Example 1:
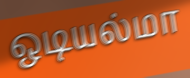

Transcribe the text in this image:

ஒடியல்மா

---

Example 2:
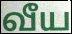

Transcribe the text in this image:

வீய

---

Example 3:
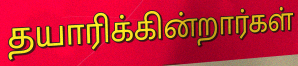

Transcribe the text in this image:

தயாரிக்கின்றார்கள்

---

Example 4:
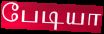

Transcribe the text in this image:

பேடியா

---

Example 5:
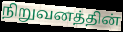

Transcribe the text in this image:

நிறுவனத்தின்